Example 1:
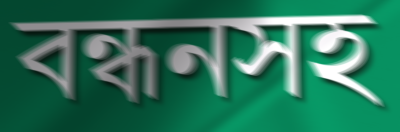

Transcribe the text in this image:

বন্ধনসহ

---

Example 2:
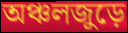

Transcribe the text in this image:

অঞ্চলজুড়ে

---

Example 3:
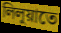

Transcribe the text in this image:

লিলুয়াতে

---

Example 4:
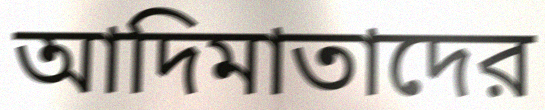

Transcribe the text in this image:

আদিমাতাদের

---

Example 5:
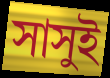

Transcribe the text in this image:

সাসুই